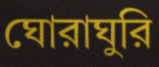
ঘোরাঘুরি